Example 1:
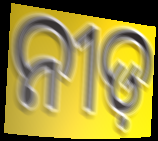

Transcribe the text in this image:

ନୀଡ଼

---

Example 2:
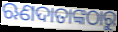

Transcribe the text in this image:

ଋଣଦାତାଙ୍କଠାରୁ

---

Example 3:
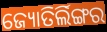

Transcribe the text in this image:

ଜ୍ୟୋତିର୍ଲିଙ୍ଗର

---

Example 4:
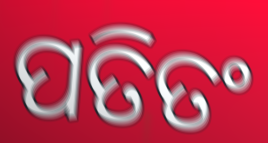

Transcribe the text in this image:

ପତିତଂ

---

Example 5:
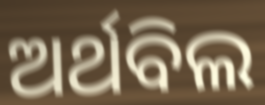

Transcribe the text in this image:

ଅର୍ଥବିଲ